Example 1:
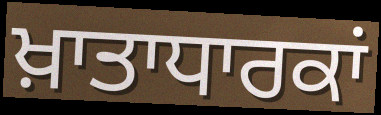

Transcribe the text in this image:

ਖ਼ਾਤਾਧਾਰਕਾਂ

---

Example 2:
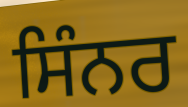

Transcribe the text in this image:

ਸਿੰਨਰ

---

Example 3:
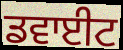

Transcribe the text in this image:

ਡਵਾਈਟ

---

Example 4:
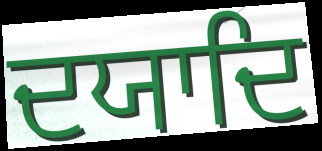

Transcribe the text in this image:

ਦਯਾਦਿ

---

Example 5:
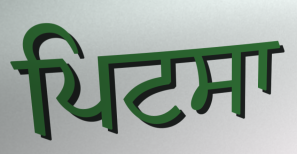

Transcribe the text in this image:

ਪਿਟਸਾ